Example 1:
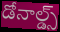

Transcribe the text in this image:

డోనాల్డ్స్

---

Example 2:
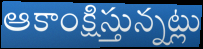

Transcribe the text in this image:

ఆకాంక్షిస్తున్నట్లు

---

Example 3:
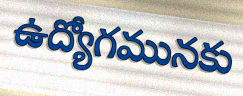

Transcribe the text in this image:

ఉద్యోగమునకు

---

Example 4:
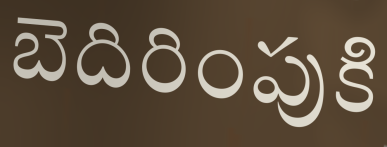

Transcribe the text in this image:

బెదిరింపుకి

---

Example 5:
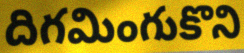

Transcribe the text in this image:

దిగమింగుకొని